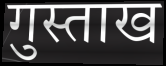
गुस्ताख